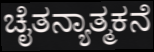
ಚೈತನ್ಯಾತ್ಮಕನೆ